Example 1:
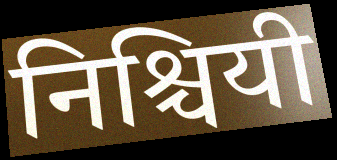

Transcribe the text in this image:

निश्चियी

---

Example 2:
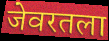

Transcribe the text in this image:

जेवरतला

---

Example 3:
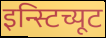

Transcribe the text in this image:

इन्स्टिच्यूट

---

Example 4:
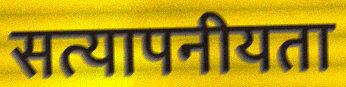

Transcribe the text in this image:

सत्यापनीयता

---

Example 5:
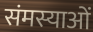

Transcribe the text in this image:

संमस्याओं